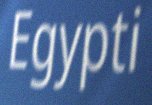
Egypti